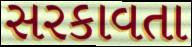
સરકાવતા